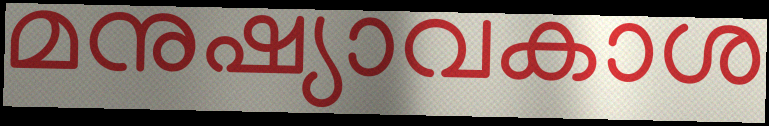
മനുഷ്യാവകാശ